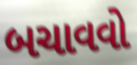
બચાવવો